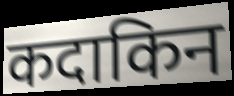
कदाकिन